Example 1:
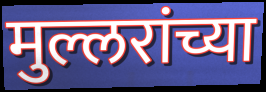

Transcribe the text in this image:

मुल्लरांच्या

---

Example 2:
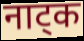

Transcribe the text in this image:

नाट्क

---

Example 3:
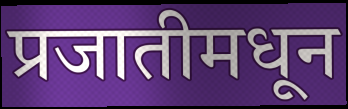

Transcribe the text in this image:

प्रजातीमधून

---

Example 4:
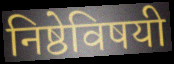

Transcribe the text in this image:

निष्ठेविषयी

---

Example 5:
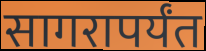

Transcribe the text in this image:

सागरापर्यंत